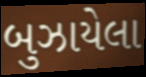
બુઝાયેલા